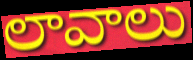
లావాలు